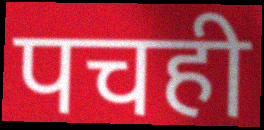
पचही